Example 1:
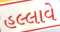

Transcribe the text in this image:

હલ્લાવે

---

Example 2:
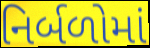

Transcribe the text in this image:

નિર્બળોમાં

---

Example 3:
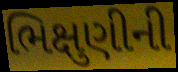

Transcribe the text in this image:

ભિક્ષુણીની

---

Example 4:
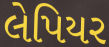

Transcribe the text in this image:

લેપિયર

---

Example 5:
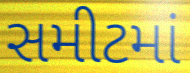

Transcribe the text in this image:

સમીટમાં